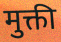
मुक्ती